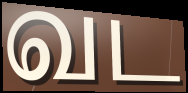
வட